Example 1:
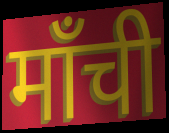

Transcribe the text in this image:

माँची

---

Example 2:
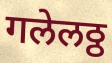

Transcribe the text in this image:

गलेलठ्ठ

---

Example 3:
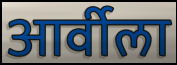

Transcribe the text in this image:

आर्वीला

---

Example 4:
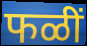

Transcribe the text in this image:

फळीं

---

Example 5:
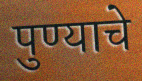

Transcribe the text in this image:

पुण्याचे